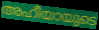
അഹീയായുടെ